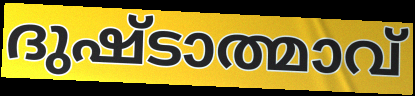
ദുഷ്ടാത്മാവ്